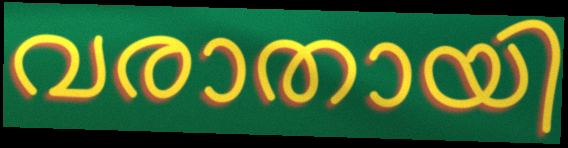
വരാതായി